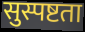
सुस्पष्टता